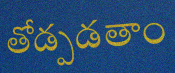
తోడ్పడతాం